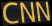
CNN